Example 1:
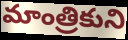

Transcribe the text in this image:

మాంత్రికుని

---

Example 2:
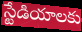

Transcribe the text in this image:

స్టేడియాలకు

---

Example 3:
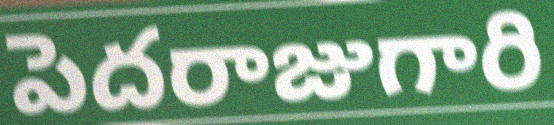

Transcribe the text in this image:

పెదరాజుగారి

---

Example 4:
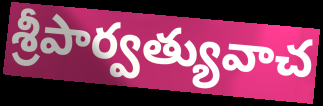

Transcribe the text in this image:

శ్రీపార్వత్యువాచ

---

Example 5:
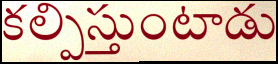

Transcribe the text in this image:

కల్పిస్తుంటాడు